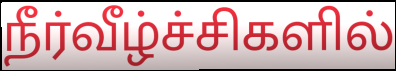
நீர்வீழ்ச்சிகளில்